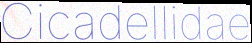
Cicadellidae